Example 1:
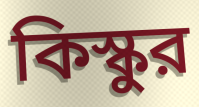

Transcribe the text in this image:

কিস্কুর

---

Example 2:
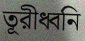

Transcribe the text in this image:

তূরীধ্বনি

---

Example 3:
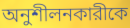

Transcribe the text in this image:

অনুশীলনকারীকে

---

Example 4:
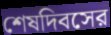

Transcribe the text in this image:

শেষদিবসের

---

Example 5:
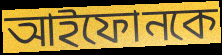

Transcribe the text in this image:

আইফোনকে